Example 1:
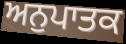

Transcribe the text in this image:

ਅਨੁਪਾਤਕ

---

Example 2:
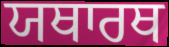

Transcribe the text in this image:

ਯਥਾਰਥ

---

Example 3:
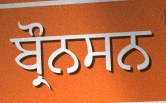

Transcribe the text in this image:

ਬ੍ਰੌਨਸਨ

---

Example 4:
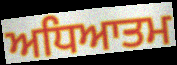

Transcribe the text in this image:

ਅਧਿਆਤਮ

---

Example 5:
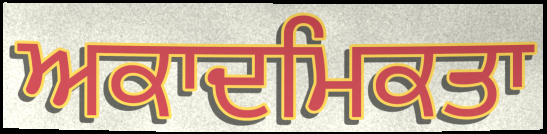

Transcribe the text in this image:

ਅਕਾਦਮਿਕਤਾ